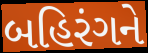
બહિરંગને